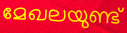
മേഖലയുണ്ട്